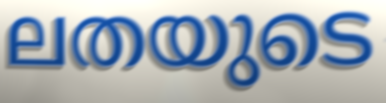
ലതയുടെ